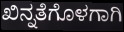
ಖಿನ್ನತೆಗೊಳಗಾಗಿ